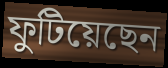
ফুটিয়েছেন